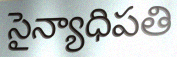
సైన్యాధిపతి